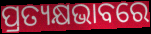
ପ୍ରତ୍ୟକ୍ଷଭାବରେ